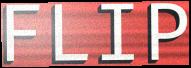
FLIP